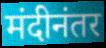
मंदीनंतर